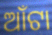
ଆଁଟା